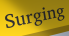
Surging